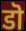
डॊ